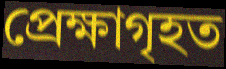
প্ৰেক্ষাগৃহত